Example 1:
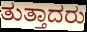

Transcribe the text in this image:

ತುತ್ತಾದರು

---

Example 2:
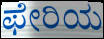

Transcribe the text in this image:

ಫೇರಿಯ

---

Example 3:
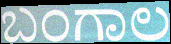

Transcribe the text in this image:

ಬಂಗಾಲ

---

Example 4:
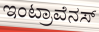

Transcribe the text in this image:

ಇಂಟ್ರಾವೆನಸ್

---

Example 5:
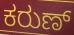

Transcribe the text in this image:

ಕರುಣ್